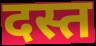
दस्त